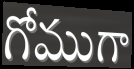
గోముగా